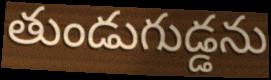
తుండుగుడ్డను